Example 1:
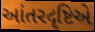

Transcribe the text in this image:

આંતરદૃષ્ટિએ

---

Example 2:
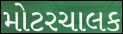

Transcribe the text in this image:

મોટરચાલક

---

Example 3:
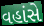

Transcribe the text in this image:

વહાંસે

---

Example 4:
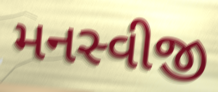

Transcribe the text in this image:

મનસ્વીજી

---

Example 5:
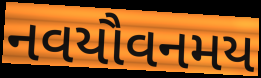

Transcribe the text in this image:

નવયૌવનમય